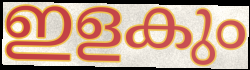
ഇളകും